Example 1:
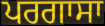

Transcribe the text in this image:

ਪਰਗਾਸਾ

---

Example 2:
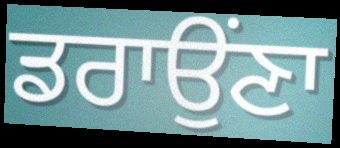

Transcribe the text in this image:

ਡਰਾਉਂਣਾ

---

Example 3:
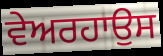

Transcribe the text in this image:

ਵੇਅਰਹਾਉਸ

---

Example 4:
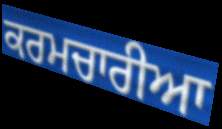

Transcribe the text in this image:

ਕਰਮਚਾਰੀਆ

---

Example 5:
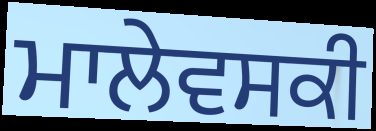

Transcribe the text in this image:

ਮਾਲੇਵਸਕੀ